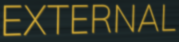
EXTERNAL